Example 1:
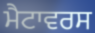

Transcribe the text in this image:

ਮੈਟਾਵਰਸ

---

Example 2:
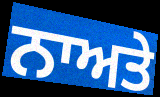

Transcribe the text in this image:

ਨਾਅਤੇ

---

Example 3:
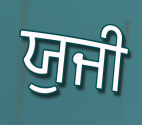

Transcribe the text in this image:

ਯੁਜੀ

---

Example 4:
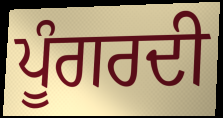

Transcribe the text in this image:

ਪੂੰਗਰਦੀ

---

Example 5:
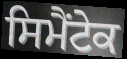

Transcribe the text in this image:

ਸਿਮੈਂਟੇਕ